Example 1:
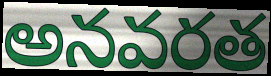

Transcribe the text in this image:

అనవరత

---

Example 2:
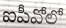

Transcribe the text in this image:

ఐపీవోలో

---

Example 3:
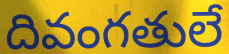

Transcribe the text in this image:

దివంగతులే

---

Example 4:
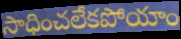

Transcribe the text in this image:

సాధించలేకపోయాం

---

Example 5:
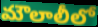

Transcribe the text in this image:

మౌలాలీలో